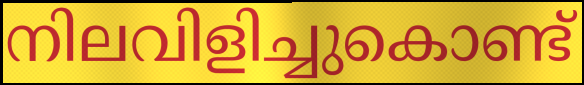
നിലവിളിച്ചുകൊണ്ട്